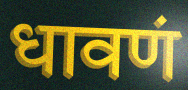
धावणं